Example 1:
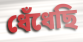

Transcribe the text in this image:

ধেঁধেছি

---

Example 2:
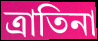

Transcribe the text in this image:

ত্রাতিনা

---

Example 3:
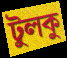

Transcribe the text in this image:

টুলকু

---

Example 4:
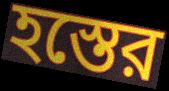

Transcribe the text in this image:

হস্তের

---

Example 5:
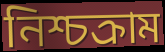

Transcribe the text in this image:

নিশ্চক্রাম